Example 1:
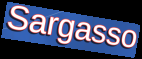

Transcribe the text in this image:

Sargasso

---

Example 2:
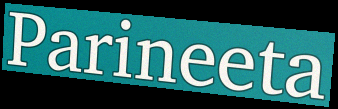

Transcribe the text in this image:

Parineeta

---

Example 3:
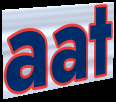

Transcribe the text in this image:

aat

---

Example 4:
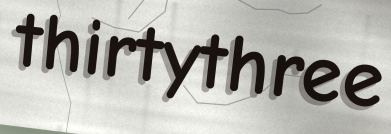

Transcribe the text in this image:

thirtythree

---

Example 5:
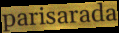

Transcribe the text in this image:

parisarada